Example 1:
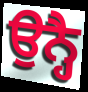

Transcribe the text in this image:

ਉਨ੍ਹੈ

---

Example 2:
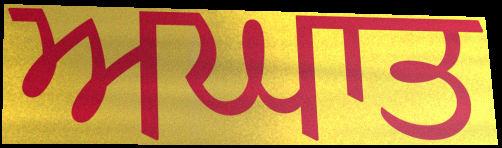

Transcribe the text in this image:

ਅਘਾਤ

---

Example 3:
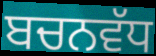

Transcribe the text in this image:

ਬਚਨਵੱਧ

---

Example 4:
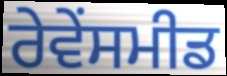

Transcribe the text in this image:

ਰੇਵੇਂਸਮੀਡ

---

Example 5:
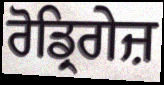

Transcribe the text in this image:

ਰੋਡ੍ਰਿਗੇਜ਼